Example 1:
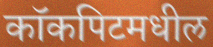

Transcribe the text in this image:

कॉकपिटमधील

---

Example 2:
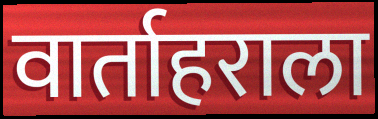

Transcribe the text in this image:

वार्ताहराला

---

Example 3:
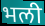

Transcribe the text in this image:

भली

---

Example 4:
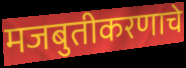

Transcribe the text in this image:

मजबुतीकरणाचे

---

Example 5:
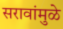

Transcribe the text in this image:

सरावांमुळे